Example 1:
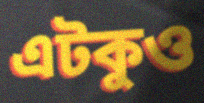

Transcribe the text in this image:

এটকুও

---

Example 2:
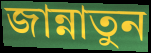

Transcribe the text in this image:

জান্নাতুন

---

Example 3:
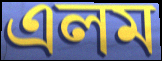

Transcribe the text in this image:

এলম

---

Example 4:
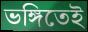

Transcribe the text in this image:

ভঙ্গিতেই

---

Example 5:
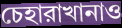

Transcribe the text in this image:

চেহারাখানাও